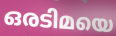
ഒരടിമയെ